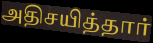
அதிசயித்தார்